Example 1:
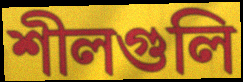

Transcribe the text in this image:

শীলগুলি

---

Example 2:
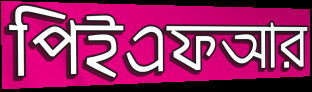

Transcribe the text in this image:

পিইএফআর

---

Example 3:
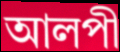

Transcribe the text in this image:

আলপী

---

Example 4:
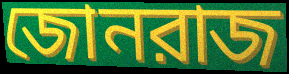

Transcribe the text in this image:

জোনরাজ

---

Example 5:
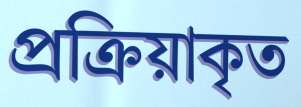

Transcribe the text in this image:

প্রক্রিয়াকৃত